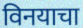
विनयाचा